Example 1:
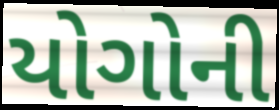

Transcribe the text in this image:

યોગોની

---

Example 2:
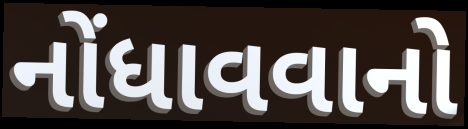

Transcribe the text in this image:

નોંધાવવાનો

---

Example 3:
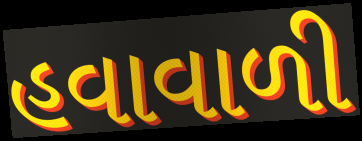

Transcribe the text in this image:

હવાવાળી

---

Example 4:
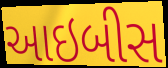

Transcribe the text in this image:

આઇબીસ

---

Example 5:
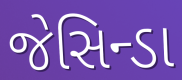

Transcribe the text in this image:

જેસિન્ડા